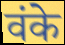
वंके